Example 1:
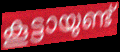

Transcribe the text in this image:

കൂട്ടായുണ്ട്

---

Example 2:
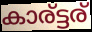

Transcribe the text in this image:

കാര്ട്ടര്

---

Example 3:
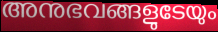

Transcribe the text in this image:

അനുഭവങ്ങളുടേയും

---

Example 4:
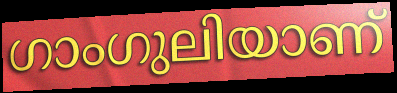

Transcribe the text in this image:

ഗാംഗുലിയാണ്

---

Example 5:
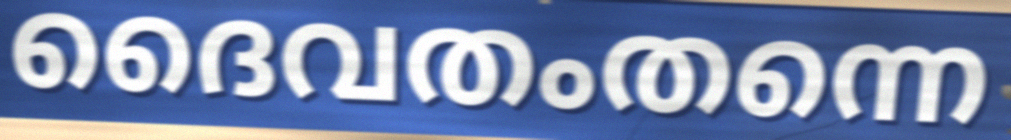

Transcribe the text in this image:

ദൈവതംതന്നെ